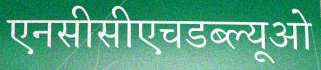
एनसीसीएचडब्ल्यूओ